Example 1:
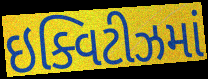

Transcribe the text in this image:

ઇક્વિટીઝમાં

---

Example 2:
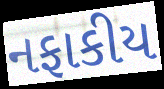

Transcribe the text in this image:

નફાકીય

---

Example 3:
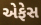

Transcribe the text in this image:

એફેસ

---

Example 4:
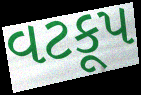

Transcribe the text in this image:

વટકૂપ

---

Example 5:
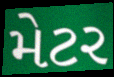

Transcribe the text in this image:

મેટર